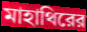
মাহাথিরের